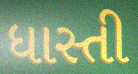
ધાસ્તી